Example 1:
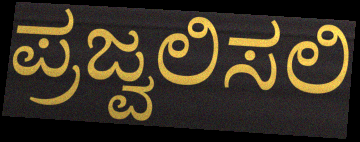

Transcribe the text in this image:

ಪ್ರಜ್ವಲಿಸಲಿ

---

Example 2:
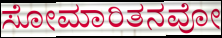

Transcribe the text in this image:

ಸೋಮಾರಿತನವೋ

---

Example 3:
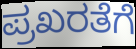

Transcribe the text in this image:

ಪ್ರಖರತೆಗೆ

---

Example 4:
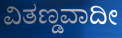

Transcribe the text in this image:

ವಿತಣ್ಡವಾದೀ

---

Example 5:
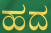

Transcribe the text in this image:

ಹದ